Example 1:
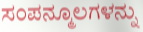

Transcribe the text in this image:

ಸಂಪನ್ಮೂಲಗಳನ್ನು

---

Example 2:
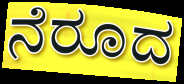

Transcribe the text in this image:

ನೆರೂದ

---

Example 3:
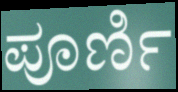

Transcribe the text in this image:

ಪೂರ್ಣಿ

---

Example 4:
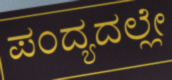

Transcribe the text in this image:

ಪಂದ್ಯದಲ್ಲೇ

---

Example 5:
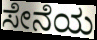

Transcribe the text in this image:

ಸೇನೆಯ